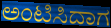
ಅಂಟಿಸಿದಾಗ